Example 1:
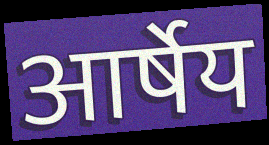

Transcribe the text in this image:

आर्षेय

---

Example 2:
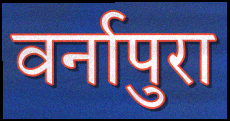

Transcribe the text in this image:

वर्नापुरा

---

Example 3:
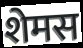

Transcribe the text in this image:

शेमस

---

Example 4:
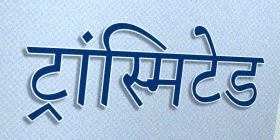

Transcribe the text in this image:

ट्रांस्मिटेड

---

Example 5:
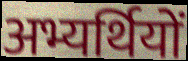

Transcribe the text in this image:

अभ्यर्थियों